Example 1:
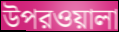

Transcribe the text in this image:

উপরওয়ালা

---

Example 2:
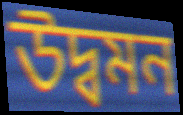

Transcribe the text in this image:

উদ্বমন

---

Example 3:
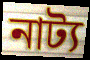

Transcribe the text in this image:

নাট্য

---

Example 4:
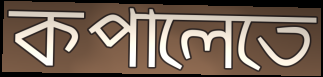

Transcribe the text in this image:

কপালেতে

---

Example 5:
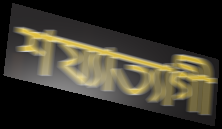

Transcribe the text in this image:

শয্যাত্যাগী